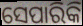
ସେପାରିକି